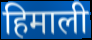
हिमाली